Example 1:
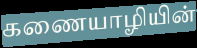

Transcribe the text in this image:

கணையாழியின்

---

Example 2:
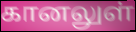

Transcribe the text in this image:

கானலுள்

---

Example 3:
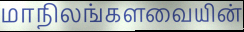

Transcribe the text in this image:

மாநிலங்களவையின்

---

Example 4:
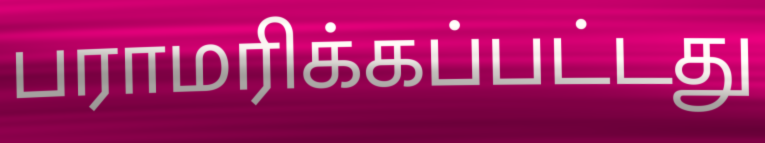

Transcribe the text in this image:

பராமரிக்கப்பட்டது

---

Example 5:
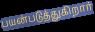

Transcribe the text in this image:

பயன்படுத்துகிறார்